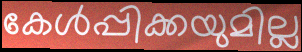
കേൾപ്പിക്കയുമില്ല